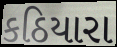
કઠિયારા